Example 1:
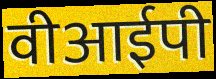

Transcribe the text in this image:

वीआईपी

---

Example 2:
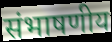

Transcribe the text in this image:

संभाषणीय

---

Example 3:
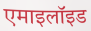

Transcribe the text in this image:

एमाइलॉइड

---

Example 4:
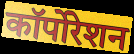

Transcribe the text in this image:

कॉर्पोरेशन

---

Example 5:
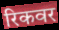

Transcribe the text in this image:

रिकवर